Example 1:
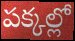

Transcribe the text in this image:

పక్కల్లో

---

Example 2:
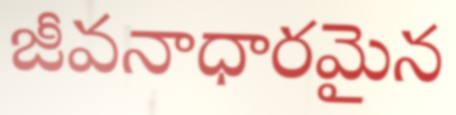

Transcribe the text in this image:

జీవనాధారమైన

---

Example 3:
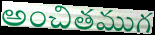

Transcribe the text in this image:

అంచితముగ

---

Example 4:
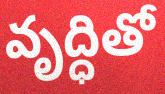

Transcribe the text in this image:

వృద్ధితో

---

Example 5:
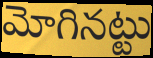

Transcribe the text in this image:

మోగినట్టు